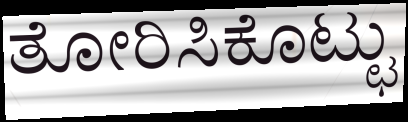
ತೋರಿಸಿಕೊಟ್ಟು